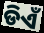
ଡିଏଁ